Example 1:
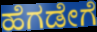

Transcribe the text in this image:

ಹೆಗಡೇಗೆ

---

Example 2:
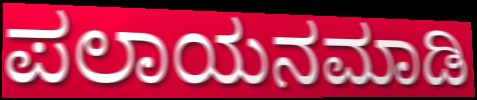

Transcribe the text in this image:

ಪಲಾಯನಮಾಡಿ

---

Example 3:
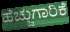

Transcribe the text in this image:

ಹೆಚ್ಚುಗಾರಿಕೆ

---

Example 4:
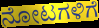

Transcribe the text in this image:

ನೋಟಗಳಿಗೆ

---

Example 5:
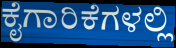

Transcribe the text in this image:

ಕೈಗಾರಿಕೆಗಳಲ್ಲಿ